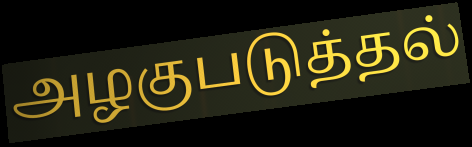
அழகுபடுத்தல்